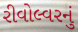
રીવોલ્વરનું